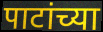
पाटांच्या